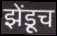
झेंडूच